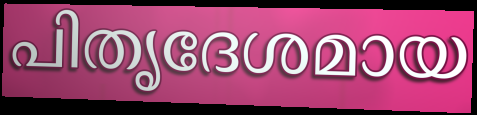
പിതൃദേശമായ